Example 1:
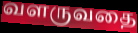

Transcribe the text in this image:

வளருவதை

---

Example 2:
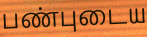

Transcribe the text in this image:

பண்புடைய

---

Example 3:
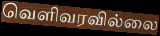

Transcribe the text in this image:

வெளிவரவில்லை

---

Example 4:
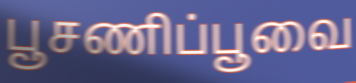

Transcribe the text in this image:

பூசணிப்பூவை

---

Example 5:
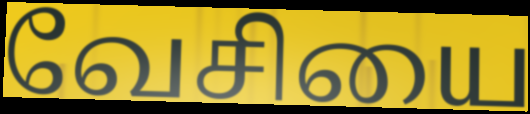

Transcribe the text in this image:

வேசியை